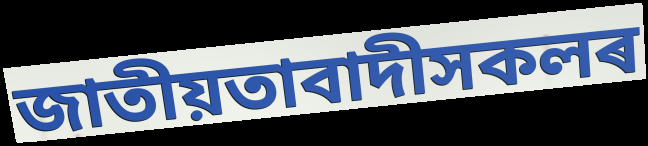
জাতীয়তাবাদীসকলৰ